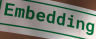
Embedding